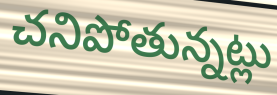
చనిపోతున్నట్లు